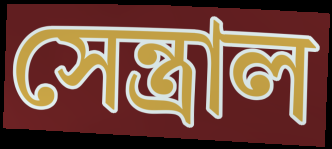
সেন্ত্রাল